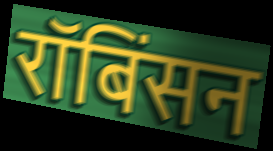
रॉबिंसन